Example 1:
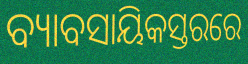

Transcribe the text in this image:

ବ୍ୟାବସାୟିକସ୍ତରରେ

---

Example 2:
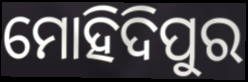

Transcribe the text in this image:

ମୋହିଦିପୁର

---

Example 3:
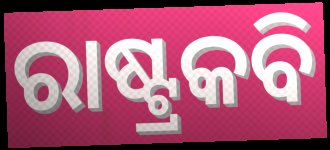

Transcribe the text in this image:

ରାଷ୍ଟ୍ରକବି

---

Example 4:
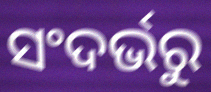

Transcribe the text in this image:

ସଂଦର୍ଭରୁ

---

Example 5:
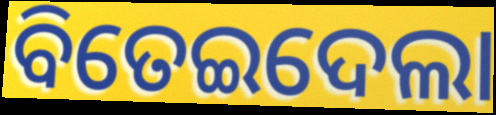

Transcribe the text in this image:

ବିତେଇଦେଲା